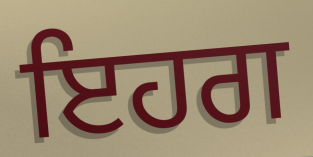
ਇਹਗ